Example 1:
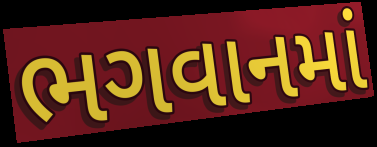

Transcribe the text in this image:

ભગવાનમાં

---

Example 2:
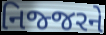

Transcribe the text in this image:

નિજ્જરને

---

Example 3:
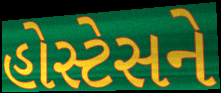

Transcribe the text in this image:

હોસ્ટેસને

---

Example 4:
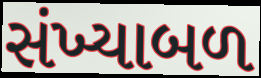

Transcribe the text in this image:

સંખ્યાબળ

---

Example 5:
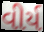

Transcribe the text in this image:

વીર્ય